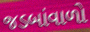
જડબાંવાળો